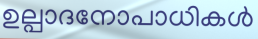
ഉല്പാദനോപാധികൾ